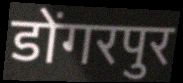
डोंगरपुर